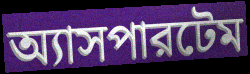
অ্যাসপারটেম